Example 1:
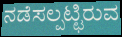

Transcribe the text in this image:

ನಡೆಸಲ್ಪಟ್ಟಿರುವ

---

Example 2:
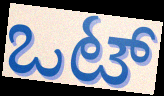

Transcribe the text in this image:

ಒಟ್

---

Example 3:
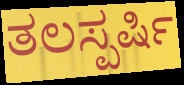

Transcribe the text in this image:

ತಲಸ್ಪರ್ಷಿ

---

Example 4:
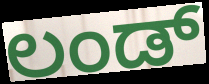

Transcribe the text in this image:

ಲಂಡ್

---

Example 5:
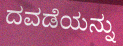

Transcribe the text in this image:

ದವಡೆಯನ್ನು